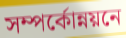
সম্পর্কোন্নয়নে